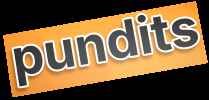
pundits